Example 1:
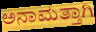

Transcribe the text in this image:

ಅನಾಮತ್ತಾಗಿ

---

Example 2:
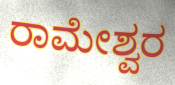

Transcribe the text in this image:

ರಾಮೇಶ್ವರ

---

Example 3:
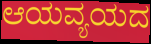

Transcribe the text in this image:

ಆಯವ್ಯಯದ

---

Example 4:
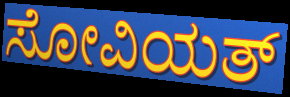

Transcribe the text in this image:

ಸೋವಿಯತ್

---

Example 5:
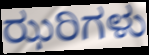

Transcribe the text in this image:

ಝರಿಗಳು